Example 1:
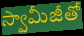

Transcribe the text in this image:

స్వామీజీతో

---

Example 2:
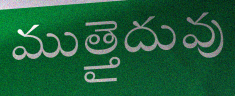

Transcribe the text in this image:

ముత్తైదువు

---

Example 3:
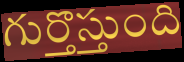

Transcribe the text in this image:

గుర్తొస్తుంది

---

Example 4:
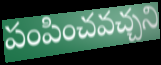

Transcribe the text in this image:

పంపించవచ్చని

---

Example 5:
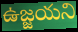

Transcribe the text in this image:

ఉజ్జయని